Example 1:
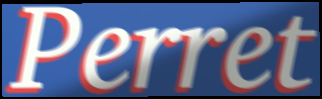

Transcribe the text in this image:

Perret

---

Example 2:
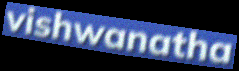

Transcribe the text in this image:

vishwanatha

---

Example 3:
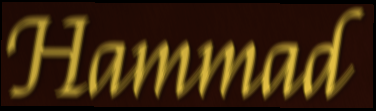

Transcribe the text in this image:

Hammad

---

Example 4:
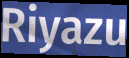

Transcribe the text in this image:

Riyazu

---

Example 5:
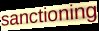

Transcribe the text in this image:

sanctioning